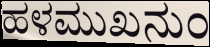
ಹಳಮುಖನುಂ